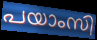
പയാംസി